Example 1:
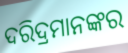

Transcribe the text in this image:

ଦରିଦ୍ରମାନଙ୍କର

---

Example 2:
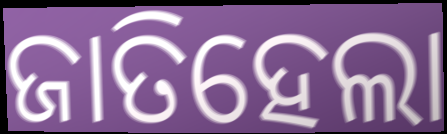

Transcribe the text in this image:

ଜାତିହେଲା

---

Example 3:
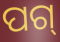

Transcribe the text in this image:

ପଗ୍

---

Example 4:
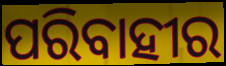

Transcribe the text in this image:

ପରିବାହୀର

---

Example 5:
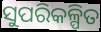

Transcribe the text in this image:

ସୁପରିକଳ୍ପିତ